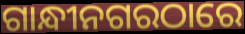
ଗାନ୍ଧୀନଗରଠାରେ